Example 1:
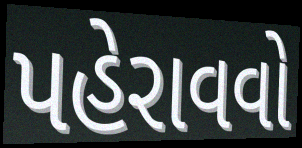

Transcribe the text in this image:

પહેરાવવો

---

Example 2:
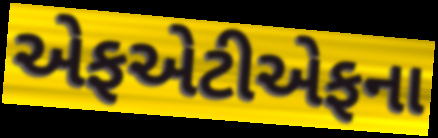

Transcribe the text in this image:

એફએટીએફના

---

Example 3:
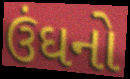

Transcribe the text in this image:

ઉંઘનો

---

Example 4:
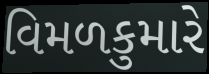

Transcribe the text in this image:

વિમળકુમારે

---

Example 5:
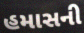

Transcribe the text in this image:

હમાસની